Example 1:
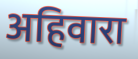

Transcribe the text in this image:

अहिवारा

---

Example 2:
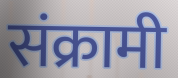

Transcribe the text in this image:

संक्रामी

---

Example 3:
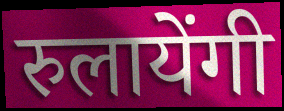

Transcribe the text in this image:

रुलायेंगी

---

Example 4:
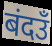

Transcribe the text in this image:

बंदउँ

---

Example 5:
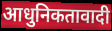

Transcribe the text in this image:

आधुनिकतावादी